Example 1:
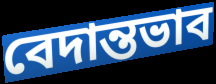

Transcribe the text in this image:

বেদান্তভাব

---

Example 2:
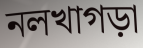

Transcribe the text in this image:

নলখাগড়া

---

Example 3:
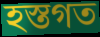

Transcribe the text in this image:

হস্তগত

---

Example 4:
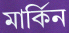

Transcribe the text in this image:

মার্কিন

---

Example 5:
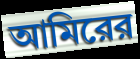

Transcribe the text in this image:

আমিরের